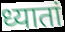
ध्यातां